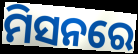
ମିସନରେ